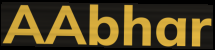
AAbhar